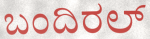
ಬಂದಿರಲ್